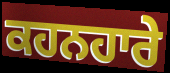
ਕਹਨਹਾਰੇ